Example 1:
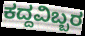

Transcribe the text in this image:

ಕದ್ದವಿಬ್ಬರ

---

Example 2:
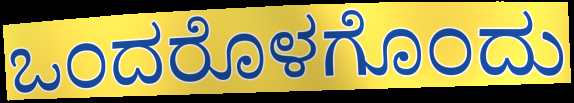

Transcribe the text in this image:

ಒಂದರೊಳಗೊಂದು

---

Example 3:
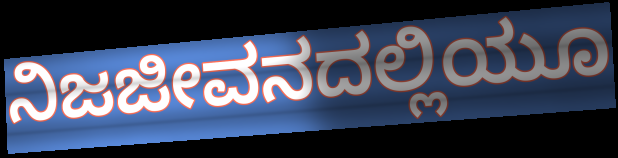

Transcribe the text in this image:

ನಿಜಜೀವನದಲ್ಲಿಯೂ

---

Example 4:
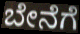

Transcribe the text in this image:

ಬೇನೆಗೆ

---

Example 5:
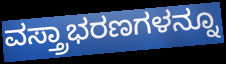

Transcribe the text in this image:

ವಸ್ತ್ರಾಭರಣಗಳನ್ನೂ